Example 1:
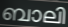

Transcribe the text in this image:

ബാലി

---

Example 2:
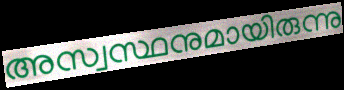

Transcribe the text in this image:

അസ്വസ്ഥനുമായിരുന്നു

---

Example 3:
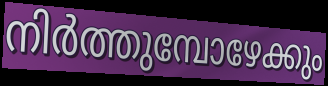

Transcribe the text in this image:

നിർത്തുമ്പോഴേക്കും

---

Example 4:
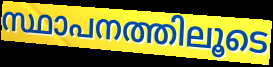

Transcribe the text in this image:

സ്ഥാപനത്തിലൂടെ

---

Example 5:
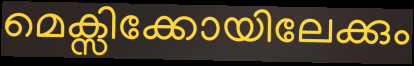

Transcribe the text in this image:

മെക്സിക്കോയിലേക്കും